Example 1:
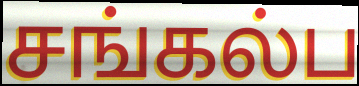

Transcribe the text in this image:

சங்கல்ப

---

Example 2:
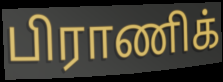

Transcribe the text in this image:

பிராணிக்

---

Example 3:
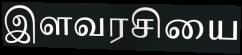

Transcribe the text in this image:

இளவரசியை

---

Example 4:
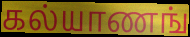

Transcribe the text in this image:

கல்யாணங்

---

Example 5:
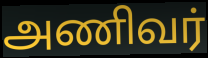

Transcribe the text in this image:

அணிவர்